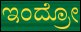
ಇಂದ್ರೋ